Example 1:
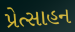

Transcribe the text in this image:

પ્રેત્સાહન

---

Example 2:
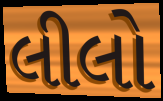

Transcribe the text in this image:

લીલો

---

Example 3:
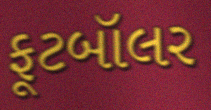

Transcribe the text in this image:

ફૂટબૉલર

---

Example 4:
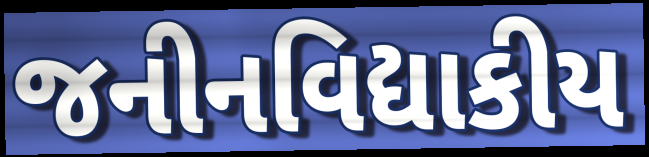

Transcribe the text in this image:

જનીનવિદ્યાકીય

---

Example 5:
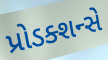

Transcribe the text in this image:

પ્રોડક્શન્સે